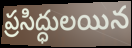
ప్రసిద్ధులయిన